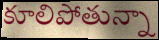
కూలిపోతున్నా